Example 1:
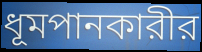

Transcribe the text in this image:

ধূমপানকারীর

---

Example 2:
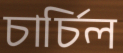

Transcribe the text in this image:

চার্চিল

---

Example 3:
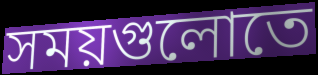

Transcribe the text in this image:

সময়গুলোতে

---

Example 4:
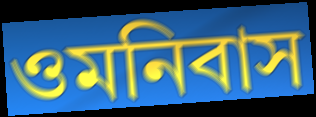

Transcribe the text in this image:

ওমনিবাস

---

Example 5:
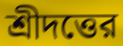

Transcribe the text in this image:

শ্রীদত্তের